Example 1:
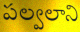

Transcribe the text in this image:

పల్వలాని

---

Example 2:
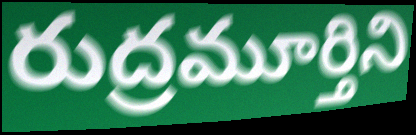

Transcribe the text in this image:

రుద్రమూర్తిని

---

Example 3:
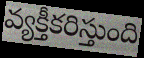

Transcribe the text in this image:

వ్యక్తీకరిస్తుంది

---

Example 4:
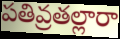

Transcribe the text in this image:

పతివ్రతల్లారా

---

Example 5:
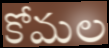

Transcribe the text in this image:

కోమల